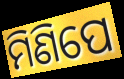
ମିଣିପେ